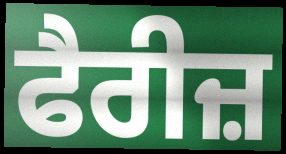
ਫੈਰੀਜ਼